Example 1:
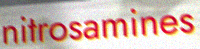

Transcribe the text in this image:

nitrosamines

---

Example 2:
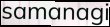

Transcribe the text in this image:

samanagi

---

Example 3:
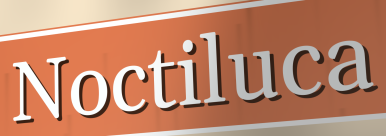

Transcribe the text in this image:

Noctiluca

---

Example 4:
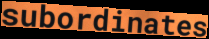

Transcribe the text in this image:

subordinates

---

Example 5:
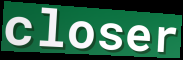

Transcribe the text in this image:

closer